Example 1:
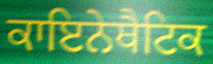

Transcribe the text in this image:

ਕਾਇਨੇਥੈਟਿਕ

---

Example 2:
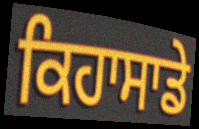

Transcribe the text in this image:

ਕਿਹਾਸਾਡੇ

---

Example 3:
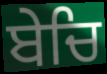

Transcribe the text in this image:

ਬੇਚਿ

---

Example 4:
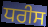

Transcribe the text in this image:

ਧਰੀਸ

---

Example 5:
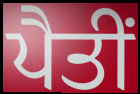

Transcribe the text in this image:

ਪੈਤੀਂ